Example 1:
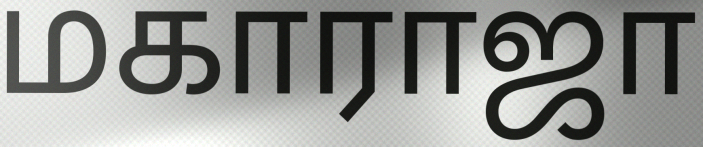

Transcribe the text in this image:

மகாராஜா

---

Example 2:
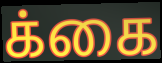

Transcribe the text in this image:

க்கை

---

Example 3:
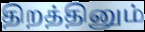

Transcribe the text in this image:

திறத்தினும்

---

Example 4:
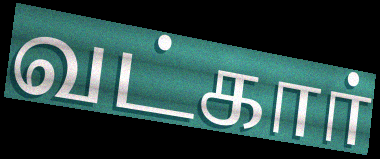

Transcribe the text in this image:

வட்கார்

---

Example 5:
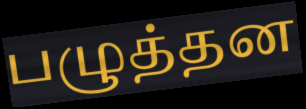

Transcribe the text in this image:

பழுத்தன